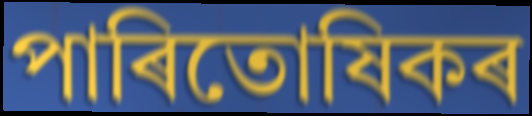
পাৰিতোষিকৰ